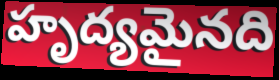
హృద్యమైనది